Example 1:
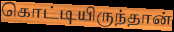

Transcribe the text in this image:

கொட்டியிருந்தான்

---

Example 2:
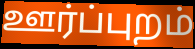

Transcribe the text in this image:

ஊர்ப்புறம்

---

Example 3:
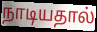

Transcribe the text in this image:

நாடியதால்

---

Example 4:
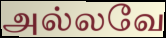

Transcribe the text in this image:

அல்லவே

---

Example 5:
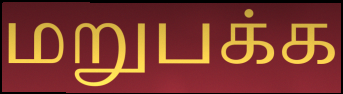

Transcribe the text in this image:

மறுபக்க